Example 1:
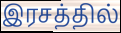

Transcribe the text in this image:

இரசத்தில்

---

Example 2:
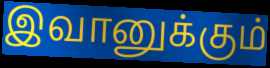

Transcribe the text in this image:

இவானுக்கும்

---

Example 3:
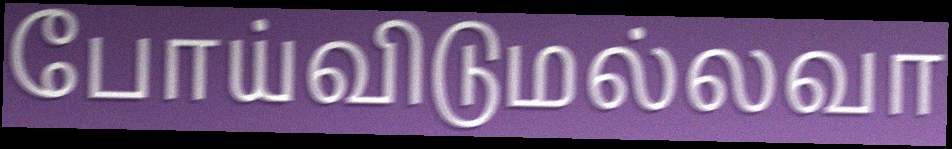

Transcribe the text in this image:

போய்விடுமல்லவா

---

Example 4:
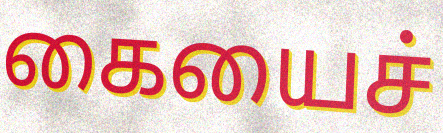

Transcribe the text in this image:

கையைச்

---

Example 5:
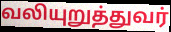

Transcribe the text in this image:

வலியுறுத்துவர்